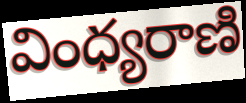
వింధ్యరాణి